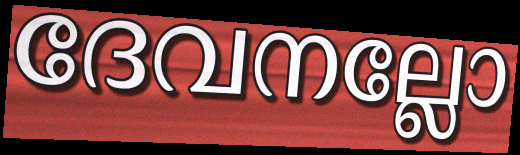
ദേവനല്ലോ